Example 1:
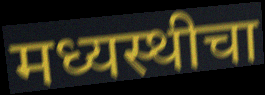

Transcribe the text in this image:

मध्यस्थीचा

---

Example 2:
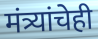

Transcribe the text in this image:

मंत्र्यांचेही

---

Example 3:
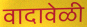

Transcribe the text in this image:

वादावेळी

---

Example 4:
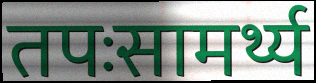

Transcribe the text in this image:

तपःसामर्थ्य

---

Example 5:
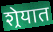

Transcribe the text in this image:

श्रेयात